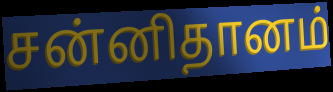
சன்னிதானம்